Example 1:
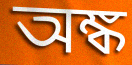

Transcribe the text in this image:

অঙ্ক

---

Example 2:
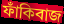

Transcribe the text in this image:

ফাঁকিবাজ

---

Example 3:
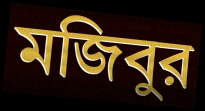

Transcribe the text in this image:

মজিবুর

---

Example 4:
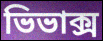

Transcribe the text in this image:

ভিভাক্স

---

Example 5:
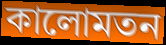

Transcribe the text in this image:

কালোমতন